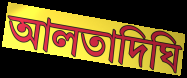
আলতাদিঘি